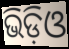
ଭିଡ଼ିଓ